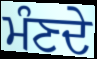
ਮੰਣਦੇ